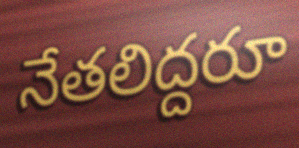
నేతలిద్దరూ